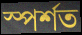
স্পৰ্শত